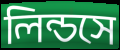
লিন্ডসে